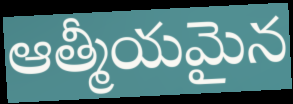
ఆత్మీయమైన